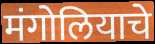
मंगोलियाचे